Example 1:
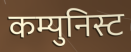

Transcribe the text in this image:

कम्युनिस्ट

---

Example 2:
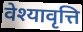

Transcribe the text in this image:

वेश्यावृत्ति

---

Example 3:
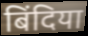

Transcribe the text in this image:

बिंदिया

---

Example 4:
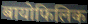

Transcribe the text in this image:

बायोफिलिक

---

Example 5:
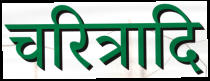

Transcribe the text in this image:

चरित्रादि